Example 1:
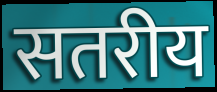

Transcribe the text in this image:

सतरीय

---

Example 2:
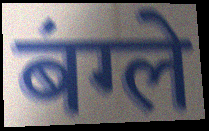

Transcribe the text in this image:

बंग्ले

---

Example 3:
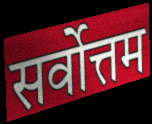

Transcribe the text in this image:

सर्वोत्तम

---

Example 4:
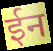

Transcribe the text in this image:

ईन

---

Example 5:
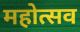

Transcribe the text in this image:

महोत्सव